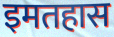
इमतहास